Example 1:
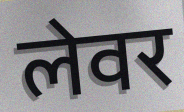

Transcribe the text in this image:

लेवर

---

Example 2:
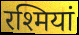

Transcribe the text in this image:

रश्मियां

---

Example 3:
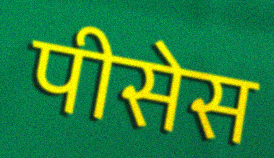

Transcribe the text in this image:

पीसेस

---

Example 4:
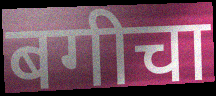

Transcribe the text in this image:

बगीचा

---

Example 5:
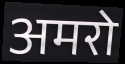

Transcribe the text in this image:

अमरो